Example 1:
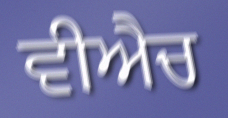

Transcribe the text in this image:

ਵੀਐਚ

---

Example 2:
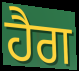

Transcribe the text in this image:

ਹੈਗ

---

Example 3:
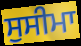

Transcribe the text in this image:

ਸੁਸੀਮਾ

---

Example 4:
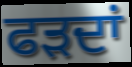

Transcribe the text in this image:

ਫੜਦਾਂ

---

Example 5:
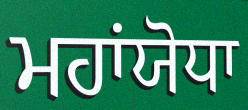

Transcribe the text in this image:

ਮਹਾਂਯੋਧਾ